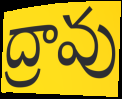
ద్రావు